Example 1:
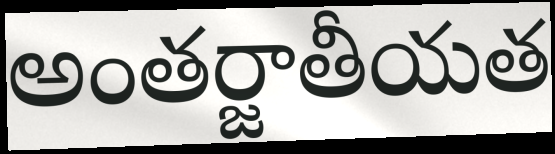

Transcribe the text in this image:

అంతర్జాతీయత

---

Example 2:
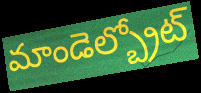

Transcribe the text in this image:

మాండెల్బ్రోట్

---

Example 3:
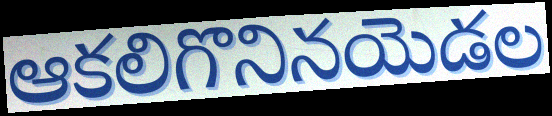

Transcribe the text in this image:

ఆకలిగొనినయెడల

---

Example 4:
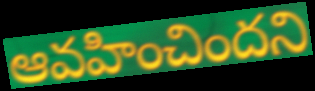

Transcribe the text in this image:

ఆవహించిందని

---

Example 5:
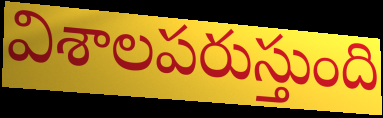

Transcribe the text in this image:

విశాలపరుస్తుంది